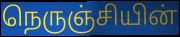
நெருஞ்சியின்